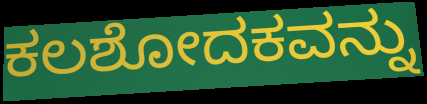
ಕಲಶೋದಕವನ್ನು